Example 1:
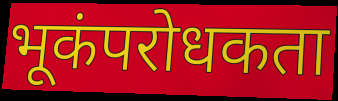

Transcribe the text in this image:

भूकंपरोधकता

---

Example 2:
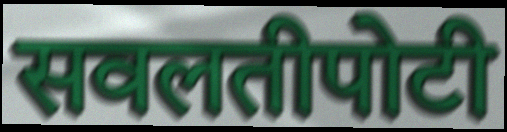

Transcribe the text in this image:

सवलतीपोटी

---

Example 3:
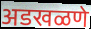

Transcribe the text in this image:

अडखळणे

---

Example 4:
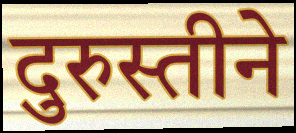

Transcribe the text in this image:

दुरुस्तीने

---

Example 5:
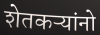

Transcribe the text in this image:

शेतकऱ्यांनो